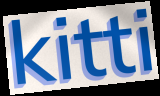
kitti